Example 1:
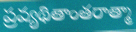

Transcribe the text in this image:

ప్రవ్యథితాంతరాత్మా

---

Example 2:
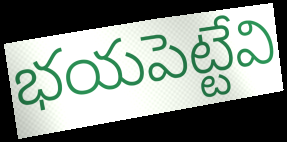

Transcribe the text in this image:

భయపెట్టేవి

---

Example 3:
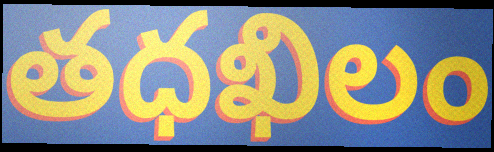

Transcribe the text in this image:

తధఖిలం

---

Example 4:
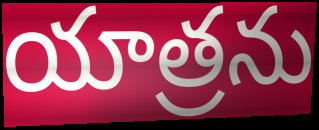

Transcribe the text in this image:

యాత్రను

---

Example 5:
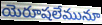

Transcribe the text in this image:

యెరూషలేమునూ